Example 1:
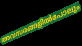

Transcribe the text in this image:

അവസരങ്ങളിൽപോലും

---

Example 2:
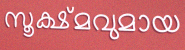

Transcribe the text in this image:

സൂക്ഷ്മവുമായ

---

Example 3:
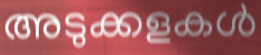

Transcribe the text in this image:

അടുക്കളകൾ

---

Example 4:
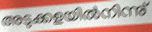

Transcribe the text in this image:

അടുക്കളയിൽനിന്നു്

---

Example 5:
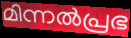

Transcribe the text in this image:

മിന്നൽപ്രഭ